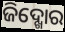
ଜିଦ୍ଖୋର